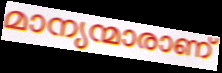
മാന്യന്മാരാണ്